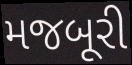
મજબૂરી